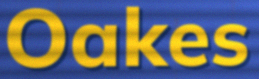
Oakes